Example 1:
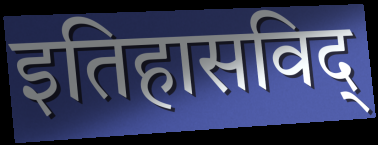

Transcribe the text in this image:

इतिहासविद्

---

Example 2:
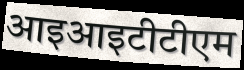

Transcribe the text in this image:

आइआइटीटीएम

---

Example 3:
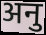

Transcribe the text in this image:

अनु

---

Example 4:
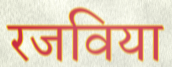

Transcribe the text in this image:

रजविया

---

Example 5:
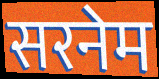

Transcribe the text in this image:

सरनेम